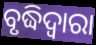
ବୃଦ୍ଧିଦ୍ୱାରା